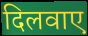
दिलवाए